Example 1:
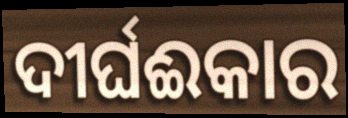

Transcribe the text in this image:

ଦୀର୍ଘଈକାର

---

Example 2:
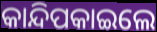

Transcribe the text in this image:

କାନ୍ଦିପକାଇଲେ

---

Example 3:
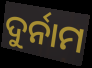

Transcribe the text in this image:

ଦୁର୍ନାମ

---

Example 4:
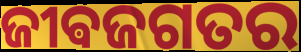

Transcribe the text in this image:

ଜୀଵଜଗତର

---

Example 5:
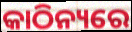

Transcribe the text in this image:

କାଠିନ୍ୟରେ